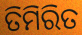
ତିମିରିତ